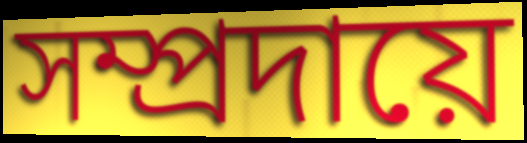
সম্প্রদায়ে